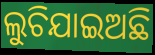
ଲୁଚିଯାଇଅଛି